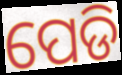
ପେଡି